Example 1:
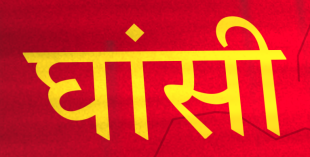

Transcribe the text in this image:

घांसी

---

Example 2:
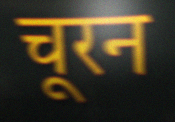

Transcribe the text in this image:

चूरन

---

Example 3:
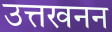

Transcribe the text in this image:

उत्तखनन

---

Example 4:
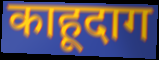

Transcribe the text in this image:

काहूदाग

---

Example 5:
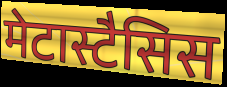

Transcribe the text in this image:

मेटास्टैसिस